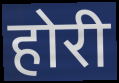
होरी